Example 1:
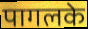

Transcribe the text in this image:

पागलके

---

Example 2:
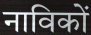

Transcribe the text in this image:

नाविकों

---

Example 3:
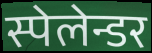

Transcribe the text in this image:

स्पेलेन्डर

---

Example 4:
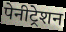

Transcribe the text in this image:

पेनीट्रेशन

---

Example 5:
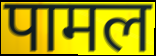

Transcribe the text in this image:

पामल